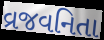
વ્રજવનિતા